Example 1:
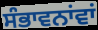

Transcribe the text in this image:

ਸੰਭਾਵਨਾਂਵਾਂ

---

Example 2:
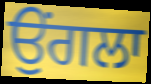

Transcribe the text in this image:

ਉਂਗਲਾ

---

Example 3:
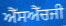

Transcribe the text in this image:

ਐੱਸਐੱਚਜੀ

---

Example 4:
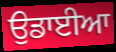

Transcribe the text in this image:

ਉਡਾਈਆ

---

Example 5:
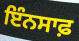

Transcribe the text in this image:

ਇੰਨਸਾਫ਼